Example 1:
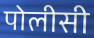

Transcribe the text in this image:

पोलीसी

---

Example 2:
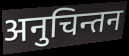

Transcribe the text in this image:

अनुचिन्तन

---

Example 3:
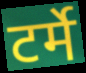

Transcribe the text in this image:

टर्मे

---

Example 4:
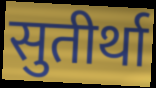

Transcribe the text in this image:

सुतीर्था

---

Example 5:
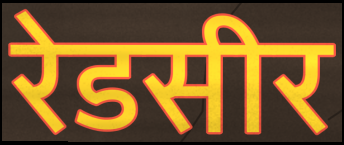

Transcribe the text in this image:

रेडसीर